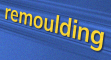
remoulding